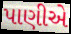
પાણીએ